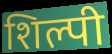
शिल्‍पी